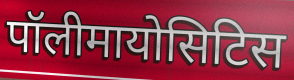
पॉलीमायोसिटिस